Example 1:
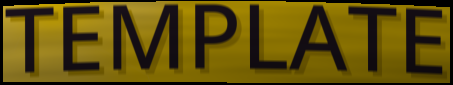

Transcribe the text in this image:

TEMPLATE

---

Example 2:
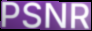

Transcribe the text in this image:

PSNR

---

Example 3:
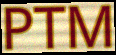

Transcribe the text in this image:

PTM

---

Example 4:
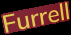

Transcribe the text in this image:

Furrell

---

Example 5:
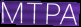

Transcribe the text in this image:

MTPA